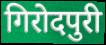
गिरोदपुरी